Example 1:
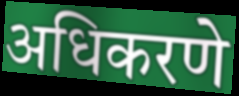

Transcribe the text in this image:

अधिकरणे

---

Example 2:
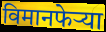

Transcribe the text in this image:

विमानफेऱ्या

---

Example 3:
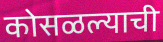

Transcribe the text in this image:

कोसळल्याची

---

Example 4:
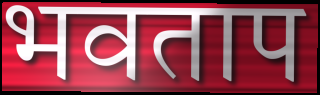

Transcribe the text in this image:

भवताप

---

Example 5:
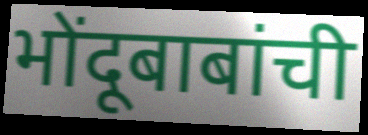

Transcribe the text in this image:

भोंदूबाबांची